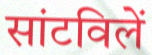
सांटविलें